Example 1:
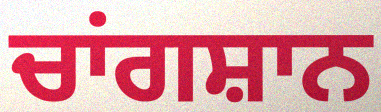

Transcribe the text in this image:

ਚਾਂਗਸ਼ਾਨ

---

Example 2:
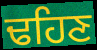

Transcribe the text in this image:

ਢਹਿਣ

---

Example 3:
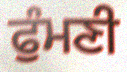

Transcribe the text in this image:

ਫੁੰਮਣੀ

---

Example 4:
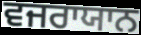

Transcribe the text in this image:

ਵਜਰਾਯਾਨ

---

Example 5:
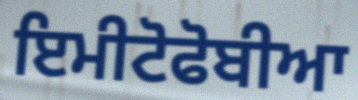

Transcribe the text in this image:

ਇਮੀਟੋਫੋਬੀਆ